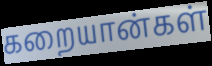
கறையான்கள்